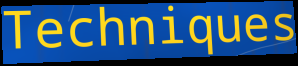
Techniques